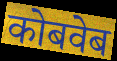
कोबवेब